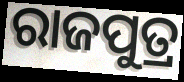
ରାଜପୁତ୍ର